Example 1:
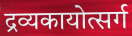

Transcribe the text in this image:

द्रव्यकायोत्सर्ग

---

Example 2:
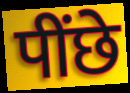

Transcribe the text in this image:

पींछे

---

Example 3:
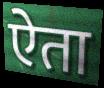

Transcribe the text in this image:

ऐता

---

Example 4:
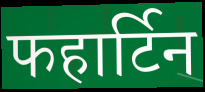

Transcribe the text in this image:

फहार्टिन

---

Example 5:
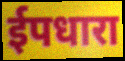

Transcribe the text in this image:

ईपधारा